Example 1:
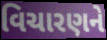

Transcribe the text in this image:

વિચારણને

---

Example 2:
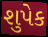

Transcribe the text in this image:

શુપેક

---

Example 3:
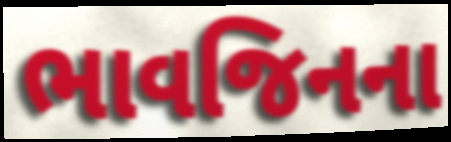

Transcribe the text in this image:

ભાવજિનના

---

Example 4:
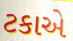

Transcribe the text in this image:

ટકાએ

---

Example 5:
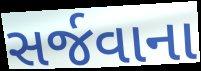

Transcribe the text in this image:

સર્જવાના